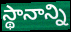
స్థానాన్ని